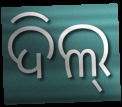
ଦିଲ୍